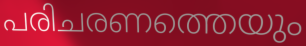
പരിചരണത്തെയും